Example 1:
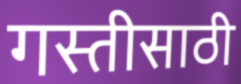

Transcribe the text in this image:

गस्तीसाठी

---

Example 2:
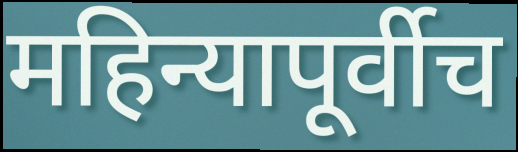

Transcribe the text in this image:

महिन्यापूर्वीच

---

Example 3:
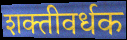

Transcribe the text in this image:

शक्तीवर्धक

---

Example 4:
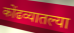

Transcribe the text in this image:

कोंढव्यातल्या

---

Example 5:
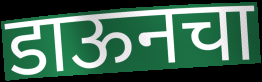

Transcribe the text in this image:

डाऊनचा